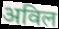
अविल